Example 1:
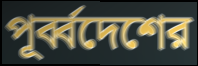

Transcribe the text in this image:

পূর্ব্বদেশের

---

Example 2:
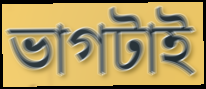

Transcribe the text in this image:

ভাগটাই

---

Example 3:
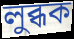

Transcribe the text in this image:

লুব্ধক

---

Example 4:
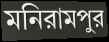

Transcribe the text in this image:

মনিরামপুর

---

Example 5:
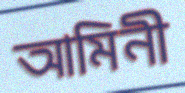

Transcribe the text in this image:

আমিনী